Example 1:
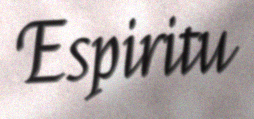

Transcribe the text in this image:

Espiritu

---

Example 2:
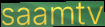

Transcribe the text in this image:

saamtv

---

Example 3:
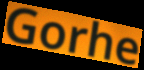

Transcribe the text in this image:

Gorhe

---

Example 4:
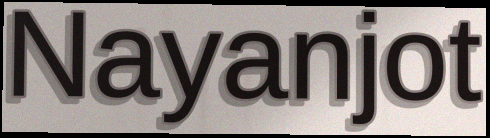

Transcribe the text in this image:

Nayanjot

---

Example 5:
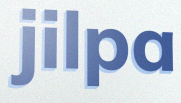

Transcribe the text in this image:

jilpa